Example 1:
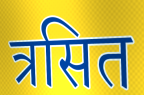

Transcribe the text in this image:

त्रसित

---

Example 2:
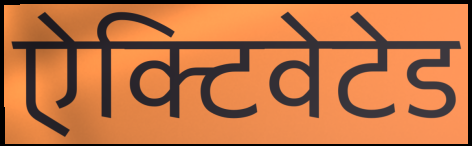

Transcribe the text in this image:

ऐक्टिवेटेड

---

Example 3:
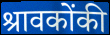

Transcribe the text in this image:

श्रावकोंकी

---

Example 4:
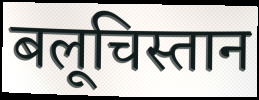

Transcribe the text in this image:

बलूचिस्तान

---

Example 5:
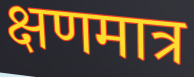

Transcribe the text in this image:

क्षणमात्र